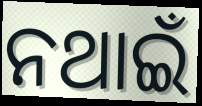
ନଥାଇଁ